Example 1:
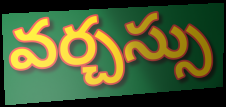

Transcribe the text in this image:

వర్చస్సు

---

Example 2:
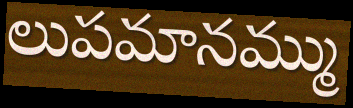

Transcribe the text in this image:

లుపమానమ్ము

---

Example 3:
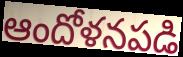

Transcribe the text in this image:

ఆందోళనపడి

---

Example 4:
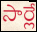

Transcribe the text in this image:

సార్లే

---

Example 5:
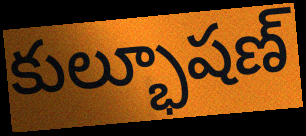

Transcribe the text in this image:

కుల్భూషణ్